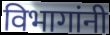
विभागांनी